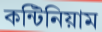
কন্টিনিয়াম